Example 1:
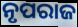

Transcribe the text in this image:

ନୃପରାଜ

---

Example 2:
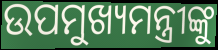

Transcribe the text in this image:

ଉପମୁଖ୍ୟମନ୍ତ୍ରୀଙ୍କୁ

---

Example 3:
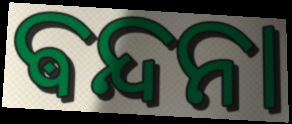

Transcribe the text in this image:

ଵନ୍ଦନା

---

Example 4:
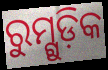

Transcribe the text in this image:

ରୁମ୍ଗୁଡ଼ିକ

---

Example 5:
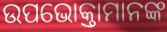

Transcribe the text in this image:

ଉପଭୋକ୍ତାମାନଙ୍କ